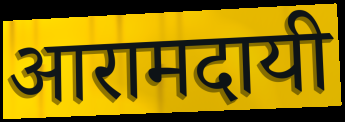
आरामदायी